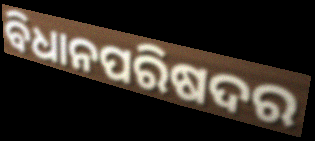
ବିଧାନପରିଷଦର